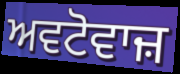
ਅਵਟੋਵਾਜ਼